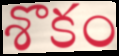
శొకం